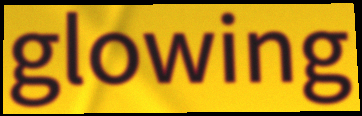
glowing